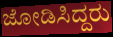
ಜೋಡಿಸಿದ್ದರು